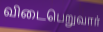
விடைபெறுவார்